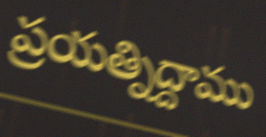
ప్రయత్నిద్దాము